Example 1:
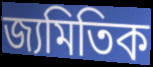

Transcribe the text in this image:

জ্যমিতিক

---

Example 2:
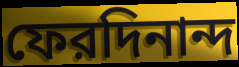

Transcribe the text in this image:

ফেরদিনান্দ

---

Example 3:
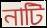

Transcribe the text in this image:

নাটি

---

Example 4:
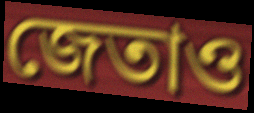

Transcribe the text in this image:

জেতাও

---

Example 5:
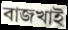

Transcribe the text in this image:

বাজখাই